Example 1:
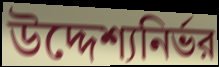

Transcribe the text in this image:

উদ্দেশ্যনির্ভর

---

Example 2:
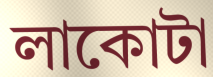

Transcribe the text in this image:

লাকোটা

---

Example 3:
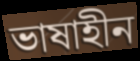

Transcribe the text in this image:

ভাষাহীন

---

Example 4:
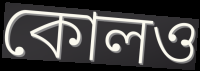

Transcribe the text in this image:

কোলও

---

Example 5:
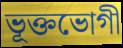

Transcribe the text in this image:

ভূক্তভোগী